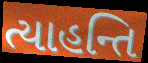
ત્યાહન્તિ